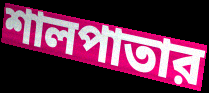
শালপাতার